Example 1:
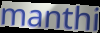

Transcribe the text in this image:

manthi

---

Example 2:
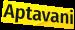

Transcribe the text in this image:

Aptavani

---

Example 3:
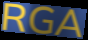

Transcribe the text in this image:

RGA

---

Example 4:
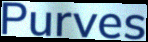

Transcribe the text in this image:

Purves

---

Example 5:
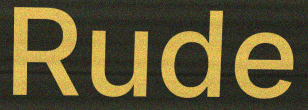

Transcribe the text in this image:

Rude